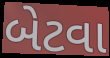
બેટવા